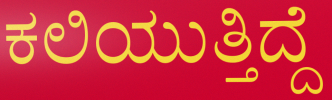
ಕಲಿಯುತ್ತಿದ್ದೆ